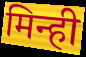
मिन्ही